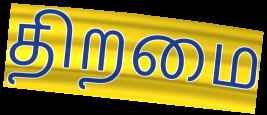
திறமை